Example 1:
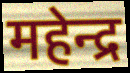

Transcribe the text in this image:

महेन्द्र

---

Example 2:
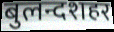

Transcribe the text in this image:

बुलन्दशहर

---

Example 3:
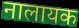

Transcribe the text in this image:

नालायक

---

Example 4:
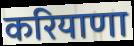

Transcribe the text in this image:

करियाणा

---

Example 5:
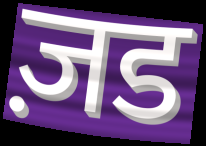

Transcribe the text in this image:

ज़ड